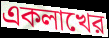
একলাখের